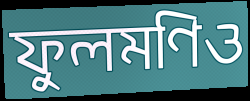
ফুলমণিও